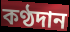
কণ্ঠদান